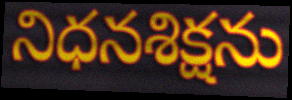
నిధనశిక్షను